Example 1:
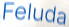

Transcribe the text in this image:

Feluda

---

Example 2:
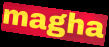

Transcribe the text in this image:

magha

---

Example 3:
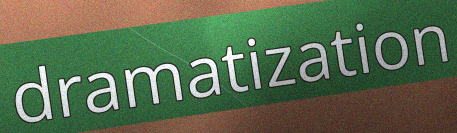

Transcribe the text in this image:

dramatization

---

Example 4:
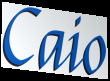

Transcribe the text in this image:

Caio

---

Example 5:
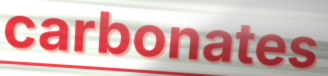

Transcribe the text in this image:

carbonates